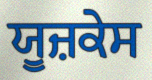
ਯੂਜ਼ਕੇਸ